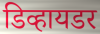
डिव्हायडर